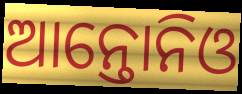
ଆନ୍ତୋନିଓ